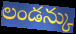
లండన్కు